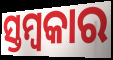
ସ୍ତମ୍ବକାର